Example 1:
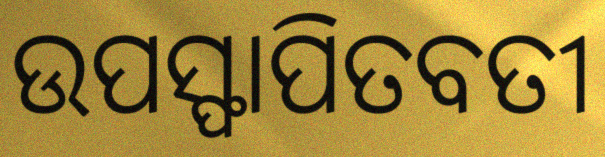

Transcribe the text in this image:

ଉପସ୍ଫାପିତବତୀ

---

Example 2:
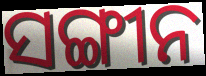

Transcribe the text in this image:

ସଙ୍ଗୀନ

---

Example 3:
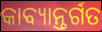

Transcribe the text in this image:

କାବ୍ଯାନ୍ତର୍ଗତ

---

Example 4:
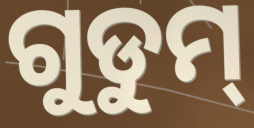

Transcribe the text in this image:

ଗୁଡୁମ୍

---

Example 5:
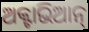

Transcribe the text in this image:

ଅକ୍ଟାଭିଆନ୍